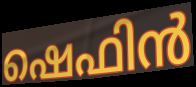
ഷെഫിൻ